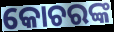
କୋଚରଙ୍କ